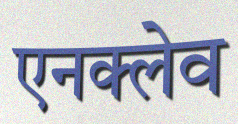
एनक्‍लेव